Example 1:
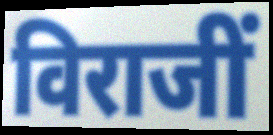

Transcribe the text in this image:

विराजीं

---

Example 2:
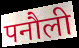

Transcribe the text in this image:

पनौली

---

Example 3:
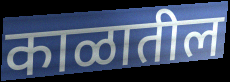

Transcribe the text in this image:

काळातील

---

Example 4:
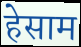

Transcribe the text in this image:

हेसाम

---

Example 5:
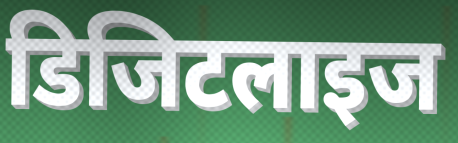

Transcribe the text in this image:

डिजिटलाइज